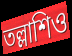
তল্লাশিও